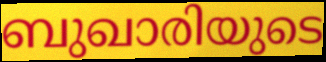
ബുഖാരിയുടെ